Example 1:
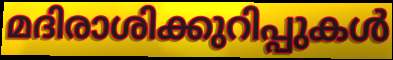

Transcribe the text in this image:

മദിരാശിക്കുറിപ്പുകൾ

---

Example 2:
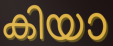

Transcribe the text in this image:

കിയാ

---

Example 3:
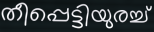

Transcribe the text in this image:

തീപ്പെട്ടിയുരച്ച്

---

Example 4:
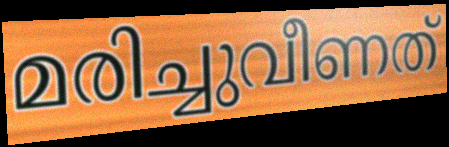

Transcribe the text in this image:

മരിച്ചുവീണത്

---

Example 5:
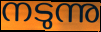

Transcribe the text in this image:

നടുന്നു